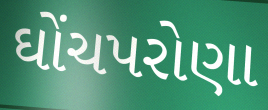
ઘોંચપરોણા